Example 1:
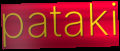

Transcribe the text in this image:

pataki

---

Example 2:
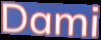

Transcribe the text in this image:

Dami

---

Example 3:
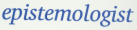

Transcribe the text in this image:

epistemologist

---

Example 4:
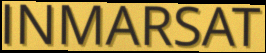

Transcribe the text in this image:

INMARSAT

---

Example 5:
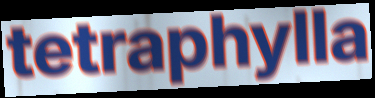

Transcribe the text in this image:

tetraphylla